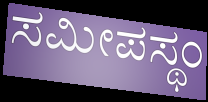
ಸಮೀಪಸ್ಥಂ